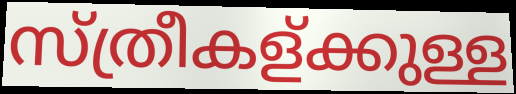
സ്ത്രീകള്ക്കുള്ള